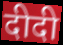
दीदी